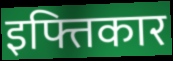
इफ्तिकार